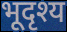
भूदृश्य